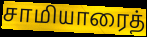
சாமியாரைத்